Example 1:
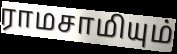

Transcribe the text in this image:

ராமசாமியும்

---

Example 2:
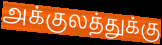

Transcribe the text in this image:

அக்குலத்துக்கு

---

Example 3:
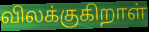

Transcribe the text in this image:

விலக்குகிறாள்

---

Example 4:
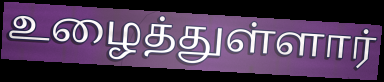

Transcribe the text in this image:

உழைத்துள்ளார்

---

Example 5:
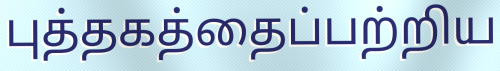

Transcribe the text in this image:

புத்தகத்தைப்பற்றிய